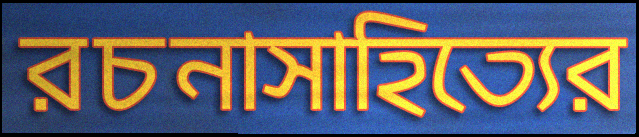
রচনাসাহিত্যের